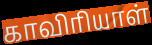
காவிரியாள்